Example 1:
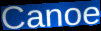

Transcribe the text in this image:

Canoe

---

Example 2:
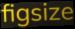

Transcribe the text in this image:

figsize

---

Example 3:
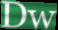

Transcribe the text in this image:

Dw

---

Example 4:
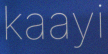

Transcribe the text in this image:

kaayi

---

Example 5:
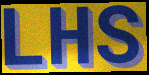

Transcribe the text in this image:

LHS